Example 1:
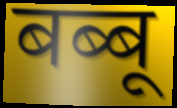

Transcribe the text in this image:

बब्बू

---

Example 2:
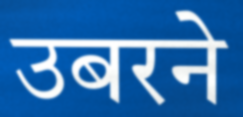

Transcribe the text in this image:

उबरने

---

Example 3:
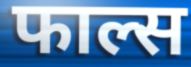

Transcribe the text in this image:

फाल्स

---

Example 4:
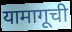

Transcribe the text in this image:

यामागूची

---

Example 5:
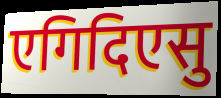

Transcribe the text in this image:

एगिदिएसु